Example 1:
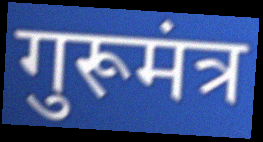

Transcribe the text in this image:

गुरूमंत्र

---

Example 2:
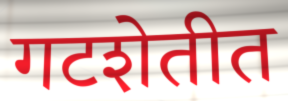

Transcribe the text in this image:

गटशेतीत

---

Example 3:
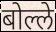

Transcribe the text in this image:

बोल्ले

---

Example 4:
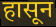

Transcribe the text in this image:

हासून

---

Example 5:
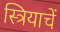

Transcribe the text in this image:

स्त्रियाचें